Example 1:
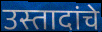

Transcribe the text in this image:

उस्तादांचे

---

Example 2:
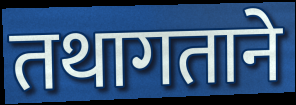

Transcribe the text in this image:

तथागताने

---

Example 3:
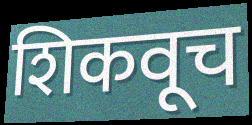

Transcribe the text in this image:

शिकवूच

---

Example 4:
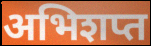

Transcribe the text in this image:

अभिशप्त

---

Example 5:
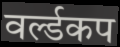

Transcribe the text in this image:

वर्ल्डकप